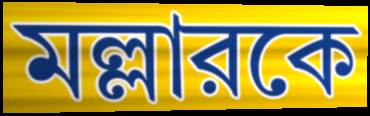
মল্লারকে